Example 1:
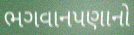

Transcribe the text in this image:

ભગવાનપણાનો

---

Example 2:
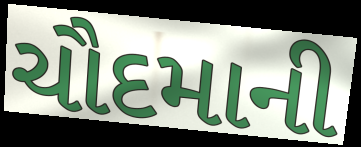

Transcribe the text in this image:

ચૌદમાની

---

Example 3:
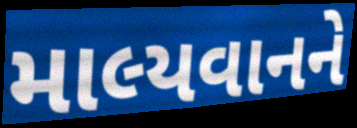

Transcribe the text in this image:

માલ્યવાનને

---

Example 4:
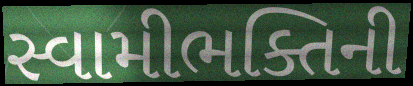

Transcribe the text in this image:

સ્વામીભક્તિની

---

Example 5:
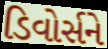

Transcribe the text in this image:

ડિવોર્સને